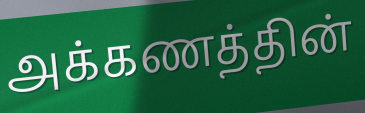
அக்கணத்தின்